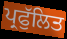
ਪ੍ਰਫੁੱਲਿਤ